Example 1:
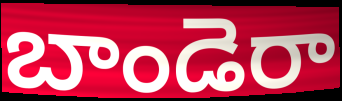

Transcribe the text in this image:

బాండెరా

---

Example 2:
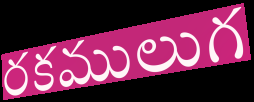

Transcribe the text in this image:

రకములుగ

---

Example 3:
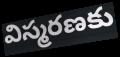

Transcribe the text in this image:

విస్మరణకు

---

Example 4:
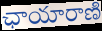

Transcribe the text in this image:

ఛాయారాణి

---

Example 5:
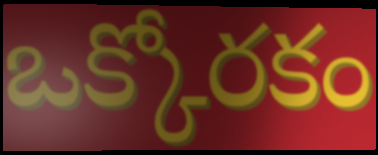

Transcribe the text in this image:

ఒక్కోరకం